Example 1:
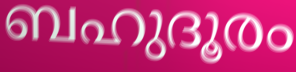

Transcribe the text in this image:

ബഹുദൂരം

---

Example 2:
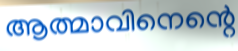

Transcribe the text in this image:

ആത്മാവിനെന്റെ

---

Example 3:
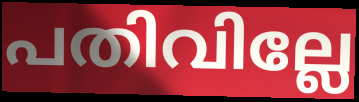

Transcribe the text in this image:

പതിവില്ലേ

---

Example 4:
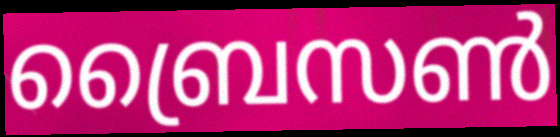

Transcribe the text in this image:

ബ്രൈസൺ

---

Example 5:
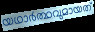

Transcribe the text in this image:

യഥാർത്ഥവുമായത്